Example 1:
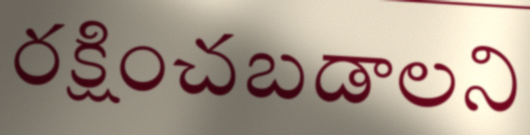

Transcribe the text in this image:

రక్షించబడాలని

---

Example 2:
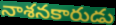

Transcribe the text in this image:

నాశనకారుడు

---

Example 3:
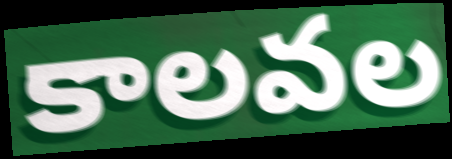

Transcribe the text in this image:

కాలవల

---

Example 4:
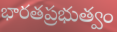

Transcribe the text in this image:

భారతప్రభుత్వం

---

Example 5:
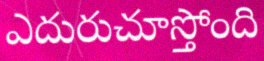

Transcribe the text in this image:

ఎదురుచూస్తోంది